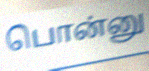
பொன்னு